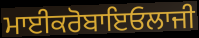
ਮਾਈਕਰੋਬਾਇਓਲਾਜੀ